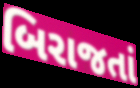
બિરાજતાં